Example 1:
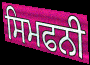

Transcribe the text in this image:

ਸਿਮਫਨੀ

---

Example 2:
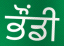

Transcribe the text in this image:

ਭੌਂਡੀ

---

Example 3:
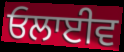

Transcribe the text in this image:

ਓਲਾਈਵ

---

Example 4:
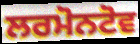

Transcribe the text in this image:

ਲਰਮੋਨਟੋਵ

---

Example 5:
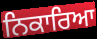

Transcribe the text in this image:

ਨਿਕਾਰਿਆ